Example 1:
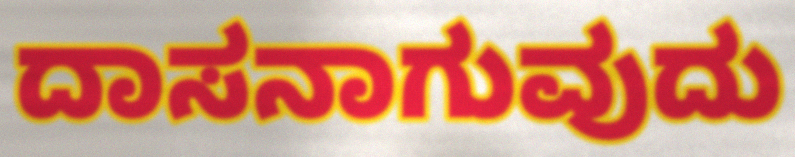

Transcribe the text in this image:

ದಾಸನಾಗುವುದು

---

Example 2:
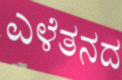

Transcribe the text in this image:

ಎಳೆತನದ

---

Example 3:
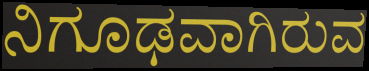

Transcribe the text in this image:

ನಿಗೂಢವಾಗಿರುವ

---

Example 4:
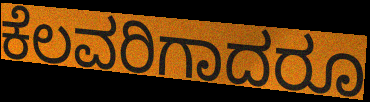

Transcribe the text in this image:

ಕೆಲವರಿಗಾದರೂ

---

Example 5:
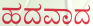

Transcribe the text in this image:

ಹದವಾದ